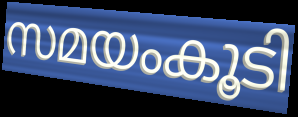
സമയംകൂടി